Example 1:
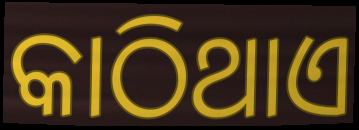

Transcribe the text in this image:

କାଠିଥାଏ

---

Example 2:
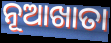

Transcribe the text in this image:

ନୂଆଖାତା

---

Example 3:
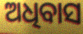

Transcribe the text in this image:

ଅଧିବାସ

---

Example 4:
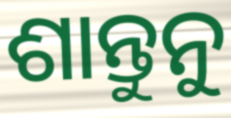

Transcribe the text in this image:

ଶାନ୍ତୁନୁ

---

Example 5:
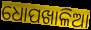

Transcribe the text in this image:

ଧୋପଖାଳିଆ